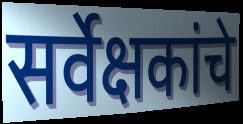
सर्वेक्षकांचे